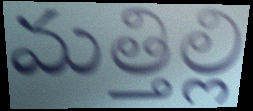
మత్తిల్లి